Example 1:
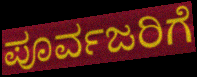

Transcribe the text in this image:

ಪೂರ್ವಜರಿಗೆ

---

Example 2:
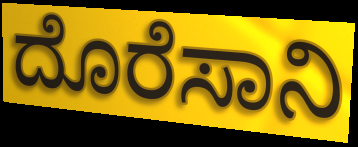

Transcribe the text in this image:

ದೊರೆಸಾನಿ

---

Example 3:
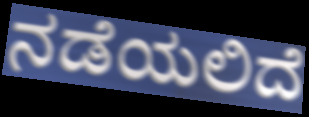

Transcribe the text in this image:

ನಡೆಯಲಿದೆ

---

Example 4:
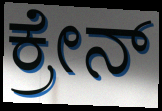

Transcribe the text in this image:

ಕ್ರೇನ್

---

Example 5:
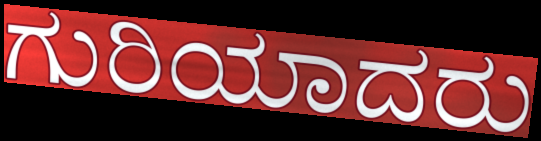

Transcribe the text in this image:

ಗುರಿಯಾದರು